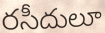
రసీదులూ